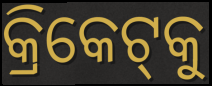
କ୍ରିକେଟ୍‌କୁ